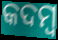
କଦମ୍ୱ